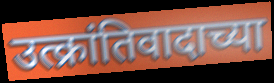
उत्क्रांतिवादाच्या